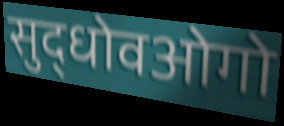
सुद्धोवओगो